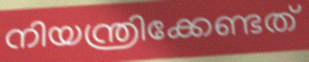
നിയന്ത്രിക്കേണ്ടത്